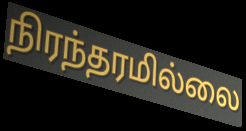
நிரந்தரமில்லை